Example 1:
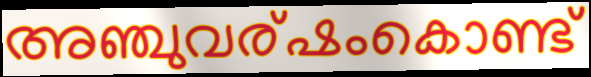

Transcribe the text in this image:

അഞ്ചുവര്ഷംകൊണ്ട്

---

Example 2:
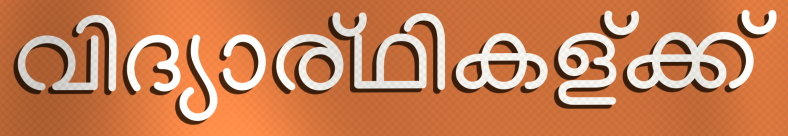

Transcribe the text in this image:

വിദ്യാര്ഥികള്ക്ക്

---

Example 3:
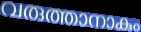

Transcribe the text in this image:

വരുത്താനാകും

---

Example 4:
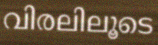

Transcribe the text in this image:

വിരലിലൂടെ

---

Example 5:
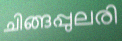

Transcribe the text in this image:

ചിങ്ങപ്പുലരി